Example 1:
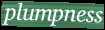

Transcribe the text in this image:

plumpness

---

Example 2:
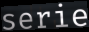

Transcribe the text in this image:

serie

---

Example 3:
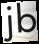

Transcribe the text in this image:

jb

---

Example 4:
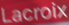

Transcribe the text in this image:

Lacroix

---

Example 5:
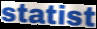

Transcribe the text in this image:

statist